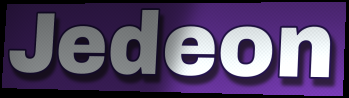
Jedeon